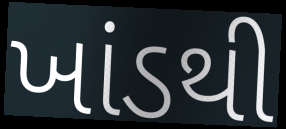
ખાંડથી